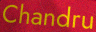
Chandru